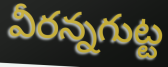
వీరన్నగుట్ట